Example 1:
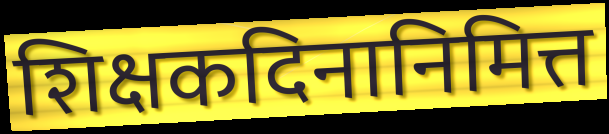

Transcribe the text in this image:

शिक्षकदिनानिमित्त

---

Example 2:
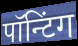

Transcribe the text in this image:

पॉन्टिंग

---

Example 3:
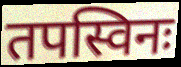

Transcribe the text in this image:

तपस्विनः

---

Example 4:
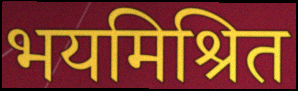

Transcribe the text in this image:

भयमिश्रित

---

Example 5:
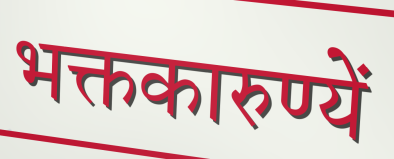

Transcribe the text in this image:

भक्तकारुण्यें